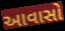
આવાસો